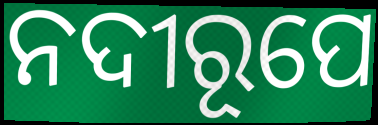
ନଦୀରୂପେ